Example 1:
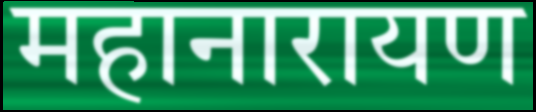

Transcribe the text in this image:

महानारायण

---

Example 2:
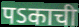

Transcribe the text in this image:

पऽकाची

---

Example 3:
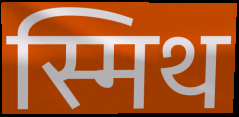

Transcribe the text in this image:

स्मिथ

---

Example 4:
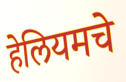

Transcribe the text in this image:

हेलियमचे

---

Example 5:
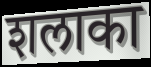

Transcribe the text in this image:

शलाका